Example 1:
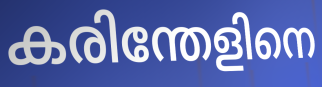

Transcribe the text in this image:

കരിന്തേളിനെ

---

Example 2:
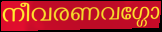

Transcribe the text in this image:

നീവരണവഗ്ഗോ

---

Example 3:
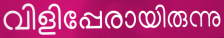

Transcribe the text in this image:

വിളിപ്പേരായിരുന്നു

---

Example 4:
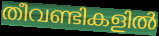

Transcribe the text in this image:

തീവണ്ടികളിൽ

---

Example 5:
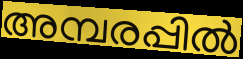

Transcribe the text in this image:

അമ്പരപ്പിൽ